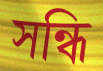
সন্ধি